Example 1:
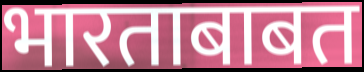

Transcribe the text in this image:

भारताबाबत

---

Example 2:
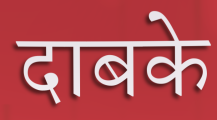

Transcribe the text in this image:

दाबके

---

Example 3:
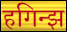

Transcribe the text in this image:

हगिन्झ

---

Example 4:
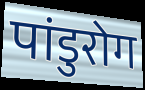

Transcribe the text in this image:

पांडुरोग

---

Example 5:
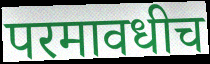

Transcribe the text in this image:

परमावधीच